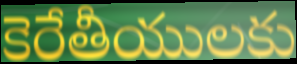
కెరేతీయులకు